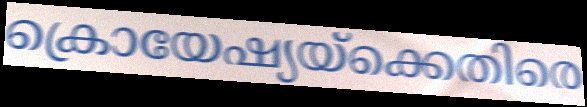
ക്രൊയേഷ്യയ്ക്കെതിരെ